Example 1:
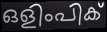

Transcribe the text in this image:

ഒളിംപിക്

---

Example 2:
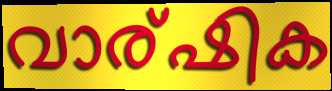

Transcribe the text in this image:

വാര്ഷിക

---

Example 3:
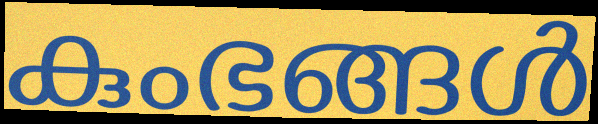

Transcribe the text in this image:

കുംഭങ്ങൾ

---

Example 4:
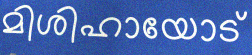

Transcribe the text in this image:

മിശിഹായോട്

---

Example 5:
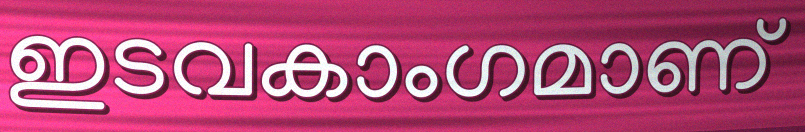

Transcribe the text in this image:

ഇടവകാംഗമാണ്